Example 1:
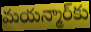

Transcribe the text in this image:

మయన్మార్‌కు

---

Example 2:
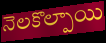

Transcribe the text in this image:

నెలకొల్పాయి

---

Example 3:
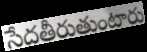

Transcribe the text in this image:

సేదతీరుతుంటారు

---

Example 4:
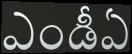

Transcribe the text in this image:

ఎండీఏ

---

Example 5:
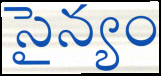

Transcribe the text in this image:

సైన్యం